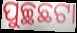
ପୁଚ୍ଛଛଟା